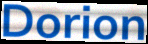
Dorion